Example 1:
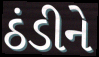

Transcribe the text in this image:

ઠંડીને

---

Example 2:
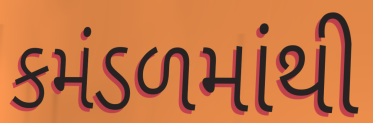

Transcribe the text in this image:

કમંડળમાંથી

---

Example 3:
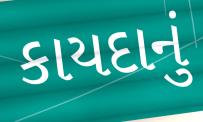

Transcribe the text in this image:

કાયદાનું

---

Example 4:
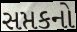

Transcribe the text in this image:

સપ્તકનો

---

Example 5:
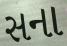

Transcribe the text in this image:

સના